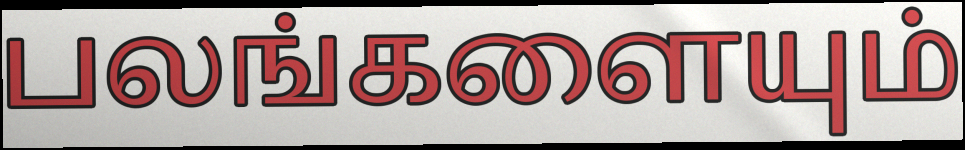
பலங்களையும்